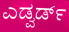
ಎಡ್ವರ್ಡ್